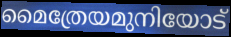
മൈത്രേയമുനിയോട്